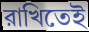
রাখিতেই